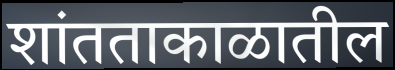
शांतताकाळातील